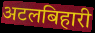
अटलबिहारी